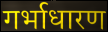
गर्भाधारण